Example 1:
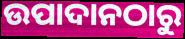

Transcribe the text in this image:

ଉପାଦାନଠାରୁ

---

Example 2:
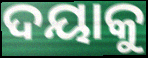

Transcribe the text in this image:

ଦୟାକୁ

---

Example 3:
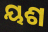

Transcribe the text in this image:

ୟଶ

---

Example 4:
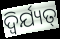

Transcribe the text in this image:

ଦ୍ୱିର୍ଯ୍ୟତ୍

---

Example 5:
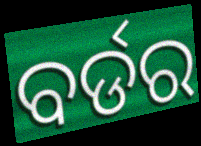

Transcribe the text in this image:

ବର୍ଡର